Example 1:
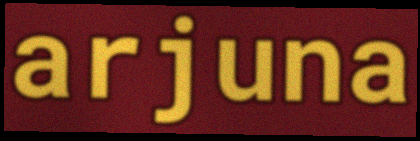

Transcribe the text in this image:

arjuna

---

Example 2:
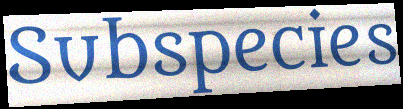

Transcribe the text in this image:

Subspecies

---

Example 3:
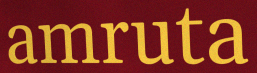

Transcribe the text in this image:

amruta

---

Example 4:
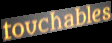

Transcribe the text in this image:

touchables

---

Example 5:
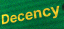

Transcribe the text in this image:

Decency